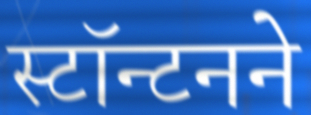
स्टॉन्टनने